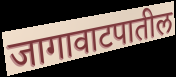
जागावाटपातील